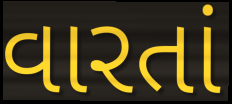
વારતાં